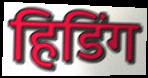
हिडिंग